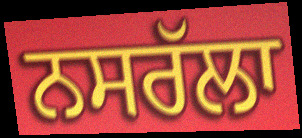
ਨਸਰੱਲਾ